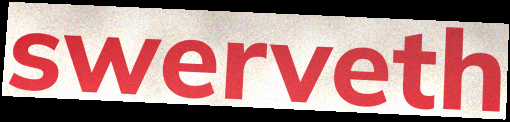
swerveth